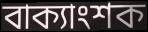
বাক্যাংশক